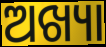
ଅଖ୍ୟା